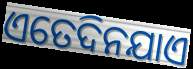
ଏତେଦିନଯାଏ